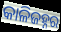
କାଳିଜହ୍ନର